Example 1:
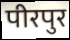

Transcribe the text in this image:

पीरपुर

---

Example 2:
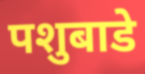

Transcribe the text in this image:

पशुबाडे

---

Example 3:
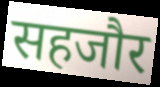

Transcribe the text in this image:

सहजौर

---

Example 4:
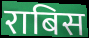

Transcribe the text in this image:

राबिस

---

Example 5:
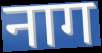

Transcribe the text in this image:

नाग